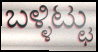
ಬಳ್ಳಿಟ್ಟು